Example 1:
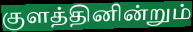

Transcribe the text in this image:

குளத்தினின்றும்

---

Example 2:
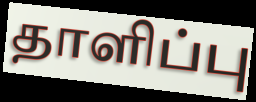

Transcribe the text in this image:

தாளிப்பு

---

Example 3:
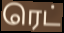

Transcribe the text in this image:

ரெட்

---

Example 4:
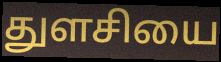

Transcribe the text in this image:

துளசியை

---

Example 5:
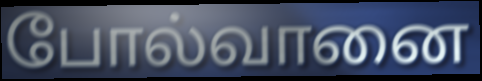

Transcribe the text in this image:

போல்வானை